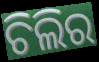
ଚିଲିର